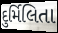
દુર્મિલિતા